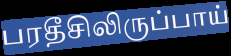
பரதீசிலிருப்பாய்